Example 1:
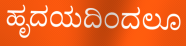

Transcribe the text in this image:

ಹೃದಯದಿಂದಲೂ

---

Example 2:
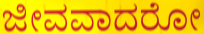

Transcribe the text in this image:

ಜೀವವಾದರೋ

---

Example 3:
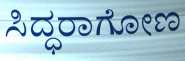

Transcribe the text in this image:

ಸಿದ್ಧರಾಗೋಣ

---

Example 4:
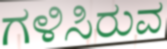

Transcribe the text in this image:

ಗಳಿಸಿರುವ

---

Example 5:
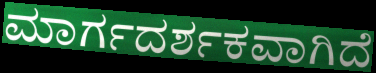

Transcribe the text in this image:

ಮಾರ್ಗದರ್ಶಕವಾಗಿದೆ